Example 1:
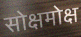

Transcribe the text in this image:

सोक्षमोक्ष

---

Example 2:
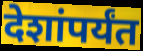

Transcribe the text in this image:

देशांपर्यंत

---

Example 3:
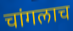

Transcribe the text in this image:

चांगलाच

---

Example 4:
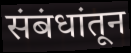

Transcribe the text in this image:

संबंधांतून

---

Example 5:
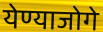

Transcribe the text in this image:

येण्याजोगे